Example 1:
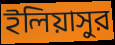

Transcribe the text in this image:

ইলিয়াসুর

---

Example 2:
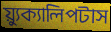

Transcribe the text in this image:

য়্যুক্যালিপটাস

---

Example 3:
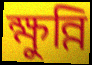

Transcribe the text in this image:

ক্ষুন্নি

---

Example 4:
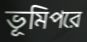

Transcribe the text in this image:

ভূমিপরে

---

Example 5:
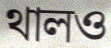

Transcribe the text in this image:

থালও